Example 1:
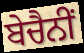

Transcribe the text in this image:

ਬੇਚੈਨੀਂ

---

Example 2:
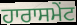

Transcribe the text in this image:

ਹਾਰਾਸਮੇਂਟ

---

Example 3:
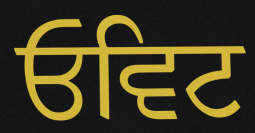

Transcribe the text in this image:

ਓਵਿਟ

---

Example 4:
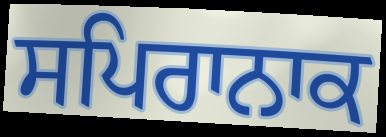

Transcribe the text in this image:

ਸਪਿਰਾਨਾਕ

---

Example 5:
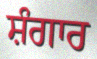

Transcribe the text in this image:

ਸ਼ੰਗਾਰ